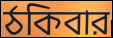
ঠকিবার